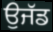
ਉਜੱਡ